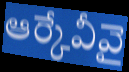
ఆర్కేవీవై